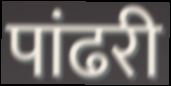
पांढरी